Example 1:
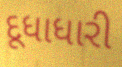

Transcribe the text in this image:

દૂધાધારી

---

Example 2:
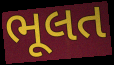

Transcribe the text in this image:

ભૂલત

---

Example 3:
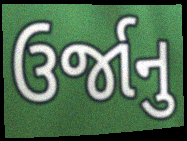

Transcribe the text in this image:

ઉર્જાનુ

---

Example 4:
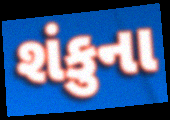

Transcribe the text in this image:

શંકુના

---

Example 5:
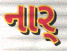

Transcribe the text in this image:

નાર્